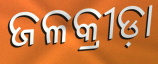
ଜଳକ୍ରୀଡ଼ା